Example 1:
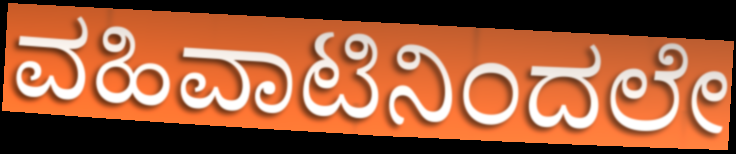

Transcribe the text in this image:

ವಹಿವಾಟಿನಿಂದಲೇ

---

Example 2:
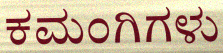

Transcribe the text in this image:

ಕಮಂಗಿಗಳು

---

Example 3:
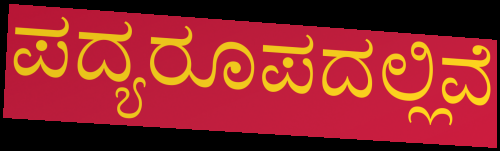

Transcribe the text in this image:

ಪದ್ಯರೂಪದಲ್ಲಿವೆ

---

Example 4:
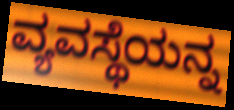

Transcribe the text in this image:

ವ್ಯವಸ್ಥೆಯನ್ನ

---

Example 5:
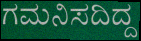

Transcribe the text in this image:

ಗಮನಿಸದಿದ್ದ